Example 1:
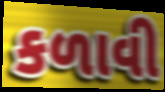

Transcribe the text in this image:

કળાવી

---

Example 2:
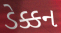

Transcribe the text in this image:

ડેક્કન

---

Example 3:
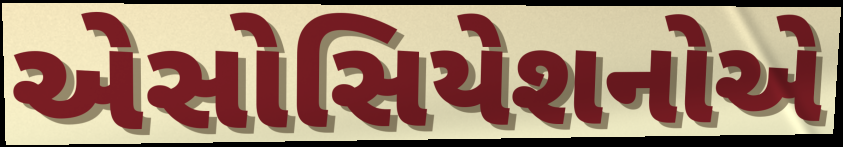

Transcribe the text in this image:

એસોસિયેશનોએ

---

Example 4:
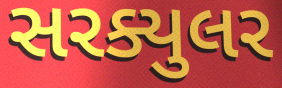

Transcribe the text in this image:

સરક્યુલર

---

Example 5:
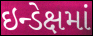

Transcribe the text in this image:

ઇન્ડેક્ષમાં